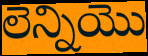
లెన్నియొ